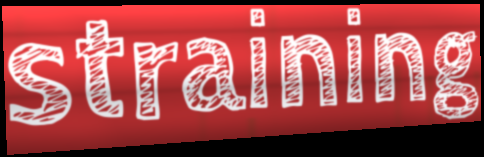
straining